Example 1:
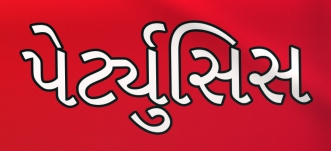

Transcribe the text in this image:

પેર્ટ્યુસિસ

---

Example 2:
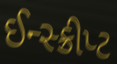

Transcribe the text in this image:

ઈન્સ્ક્રીપ્ટ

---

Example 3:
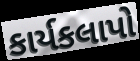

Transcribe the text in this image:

કાર્યકલાપો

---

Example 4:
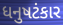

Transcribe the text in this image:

ધનુષટંકાર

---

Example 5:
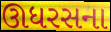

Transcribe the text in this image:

ઊધરસના